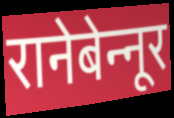
रानेबेन्नूर